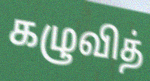
கழுவித்